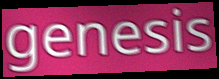
genesis